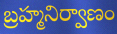
బ్రహ్మనిర్వాణం